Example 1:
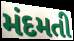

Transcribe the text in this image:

મંદમતી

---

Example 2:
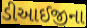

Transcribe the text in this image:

ડીઆઈજીના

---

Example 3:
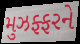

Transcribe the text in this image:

મુઝફ્ફરને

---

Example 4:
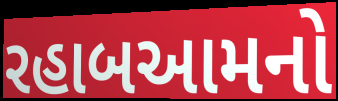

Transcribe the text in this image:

રહાબઆમનો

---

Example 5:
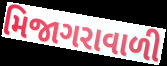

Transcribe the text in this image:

મિજાગરાવાળી